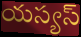
యస్యస్